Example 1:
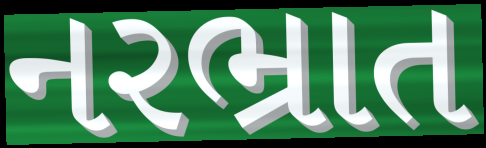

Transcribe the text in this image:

નરભ્રાત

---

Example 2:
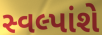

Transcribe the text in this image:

સ્વલ્પાંશે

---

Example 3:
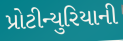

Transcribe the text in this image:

પ્રોટીન્યુરિયાની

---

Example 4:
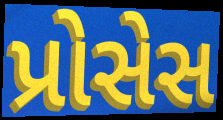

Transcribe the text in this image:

પ્રોસેસ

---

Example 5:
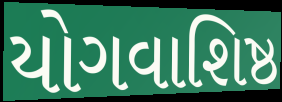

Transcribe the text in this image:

યોગવાશિષ્ઠ